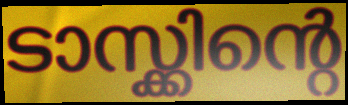
ടാസ്ക്കിന്റെ